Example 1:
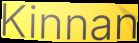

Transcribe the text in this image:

Kinnan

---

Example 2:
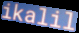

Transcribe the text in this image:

ikalil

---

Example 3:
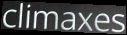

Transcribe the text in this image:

climaxes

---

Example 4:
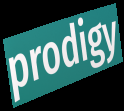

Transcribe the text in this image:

prodigy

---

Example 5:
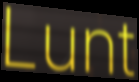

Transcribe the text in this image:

Lunt